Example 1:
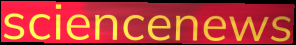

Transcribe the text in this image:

sciencenews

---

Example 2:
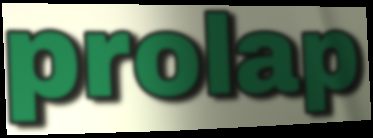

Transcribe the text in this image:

prolap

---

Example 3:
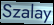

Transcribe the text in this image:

Szalay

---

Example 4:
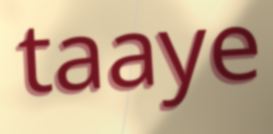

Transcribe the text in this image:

taaye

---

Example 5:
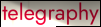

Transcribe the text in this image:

telegraphy